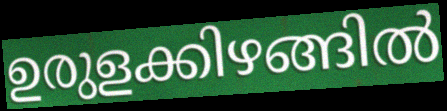
ഉരുളക്കിഴങ്ങിൽ